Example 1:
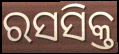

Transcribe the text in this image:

ରସସିକ୍ତ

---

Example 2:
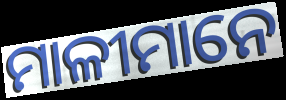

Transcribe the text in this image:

ମାଳୀମାନେ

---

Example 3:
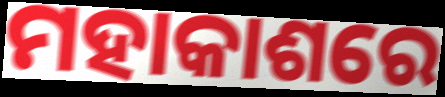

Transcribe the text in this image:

ମହାକାଶରେ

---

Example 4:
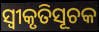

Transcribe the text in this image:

ସ୍ଵୀକୃତିସୂଚକ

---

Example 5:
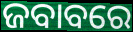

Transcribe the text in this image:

ଜବାବରେ